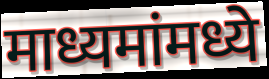
माध्यमांमध्ये